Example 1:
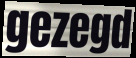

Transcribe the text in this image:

gezegd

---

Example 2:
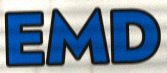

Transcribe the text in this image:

EMD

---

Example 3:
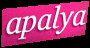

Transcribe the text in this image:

apalya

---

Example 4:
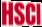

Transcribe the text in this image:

HSCI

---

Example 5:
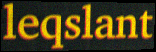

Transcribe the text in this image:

leqslant